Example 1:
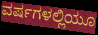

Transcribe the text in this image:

ವರ್ಷಗಳಲ್ಲಿಯೂ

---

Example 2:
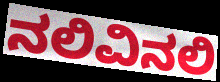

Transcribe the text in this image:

ನಲಿವಿನಲಿ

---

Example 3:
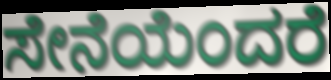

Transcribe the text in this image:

ಸೇನೆಯೆಂದರೆ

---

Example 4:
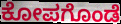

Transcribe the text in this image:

ಕೋಪಗೊಂಡೆ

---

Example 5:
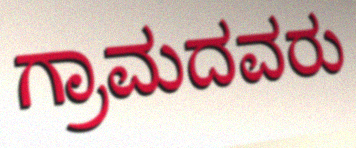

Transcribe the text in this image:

ಗ್ರಾಮದವರು